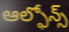
ఆల్ఫోన్స్